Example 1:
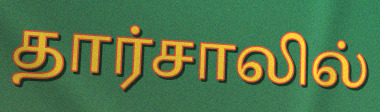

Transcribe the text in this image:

தார்சாலில்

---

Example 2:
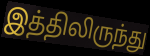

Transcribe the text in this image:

இத்திலிருந்து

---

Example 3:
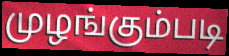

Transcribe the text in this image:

முழங்கும்படி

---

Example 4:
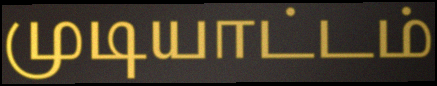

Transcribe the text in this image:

முடியாட்டம்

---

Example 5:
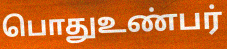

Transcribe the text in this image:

பொதுஉண்பர்